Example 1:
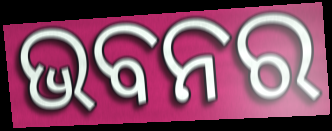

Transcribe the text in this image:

ଭବନର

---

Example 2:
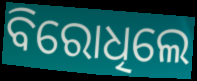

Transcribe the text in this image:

ବିରୋଧିଲେ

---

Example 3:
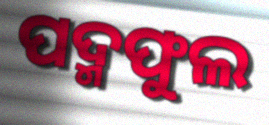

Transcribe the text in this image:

ପଦ୍ମଫୁଲ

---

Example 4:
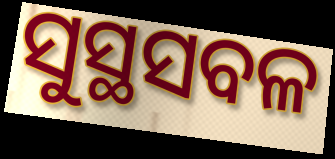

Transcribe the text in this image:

ସୁସ୍ଥସବଳ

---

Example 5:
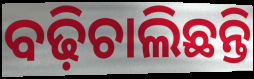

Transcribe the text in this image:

ବଢ଼ିଚାଲିଛନ୍ତି